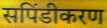
सपिंडीकरण